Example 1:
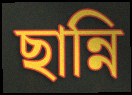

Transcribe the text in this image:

ছান্নি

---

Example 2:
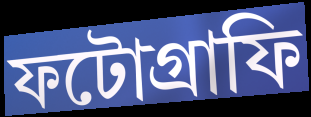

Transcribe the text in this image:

ফটোগ্ৰাফি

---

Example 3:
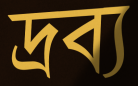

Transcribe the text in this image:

দ্ৰব্য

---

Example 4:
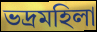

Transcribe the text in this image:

ভদ্ৰমহিলা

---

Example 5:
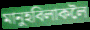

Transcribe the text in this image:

মানুহবিলাকলৈ